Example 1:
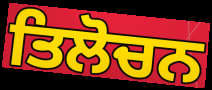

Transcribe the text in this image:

ਤਿਲੋਚਨ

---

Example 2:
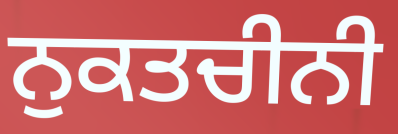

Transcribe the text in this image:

ਨੁਕਤਚੀਨੀ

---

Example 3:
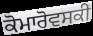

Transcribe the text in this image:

ਕੋਮਾਰੋਵਸਕੀ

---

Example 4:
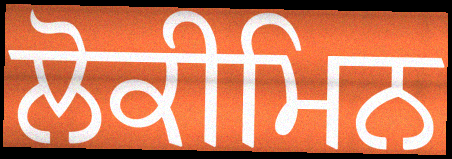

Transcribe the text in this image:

ਲੋਕੀਮਿਨ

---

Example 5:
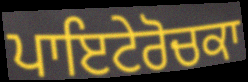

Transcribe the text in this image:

ਪਾਇਟੇਰੋਚਕਾ